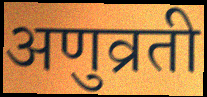
अणुव्रती